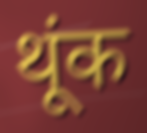
थूंक